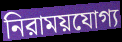
নিরাময়যোগ্য